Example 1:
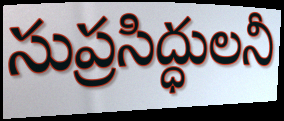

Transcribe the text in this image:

సుప్రసిద్ధులనీ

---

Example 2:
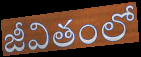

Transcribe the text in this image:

జీవితంలో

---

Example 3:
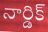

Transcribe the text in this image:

నార్డిక్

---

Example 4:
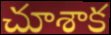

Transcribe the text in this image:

చూశాక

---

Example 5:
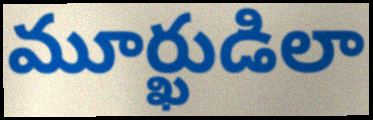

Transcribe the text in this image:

మూర్ఖుడిలా